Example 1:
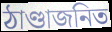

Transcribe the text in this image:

ঠাণ্ডাজনিত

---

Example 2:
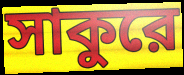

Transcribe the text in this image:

সাকুরে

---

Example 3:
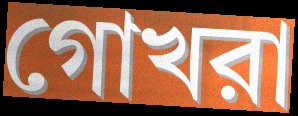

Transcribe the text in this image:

গোখরা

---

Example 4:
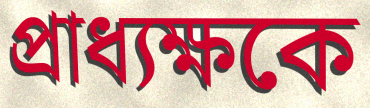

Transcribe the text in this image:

প্রাধ্যক্ষকে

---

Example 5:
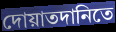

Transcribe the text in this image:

দোয়াতদানিতে